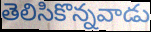
తెలిసికొన్నవాడు